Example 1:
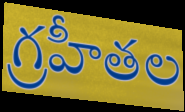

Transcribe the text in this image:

గ్రహీతల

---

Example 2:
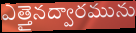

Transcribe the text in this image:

ఎత్తైనద్వారమును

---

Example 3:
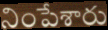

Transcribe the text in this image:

నింపేశారు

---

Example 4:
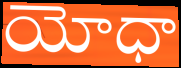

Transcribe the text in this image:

యోధా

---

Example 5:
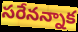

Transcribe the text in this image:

సరేనన్నాక